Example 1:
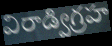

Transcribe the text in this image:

విరాడ్విగ్రహ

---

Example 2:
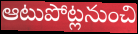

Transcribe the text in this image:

ఆటుపోట్లనుంచి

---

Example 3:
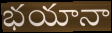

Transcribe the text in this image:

భయానా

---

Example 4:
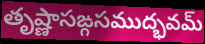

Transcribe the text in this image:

తృష్ణాసఙ్గసముద్భవమ్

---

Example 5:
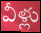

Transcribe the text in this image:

వీళ్లు